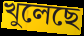
খুলেছে